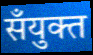
सँयुक्त